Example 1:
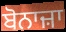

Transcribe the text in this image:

ਬੋਨਾਜ਼ਾ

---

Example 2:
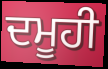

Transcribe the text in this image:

ਦਮੂਹੀ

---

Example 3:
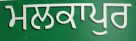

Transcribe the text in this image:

ਮਲਕਾਪੁਰ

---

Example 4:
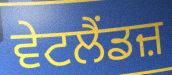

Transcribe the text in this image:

ਵੇਟਲੈਂਡਜ਼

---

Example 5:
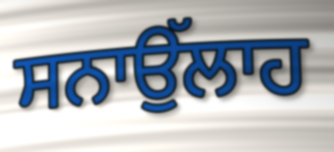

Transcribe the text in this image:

ਸਨਾਉੱਲਾਹ